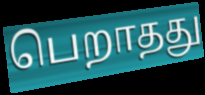
பெறாதது